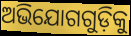
ଅଭିଯୋଗଗୁଡ଼ିକୁ